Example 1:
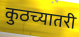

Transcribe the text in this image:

कुठच्यातरी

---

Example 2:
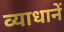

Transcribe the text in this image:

व्याधानें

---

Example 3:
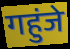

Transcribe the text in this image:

गहुंजे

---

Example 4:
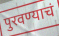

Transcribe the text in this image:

पुरवण्याचं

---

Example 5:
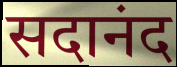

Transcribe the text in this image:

सदानंद